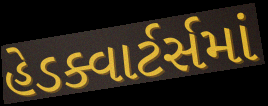
હેડક્વાર્ટર્સમાં